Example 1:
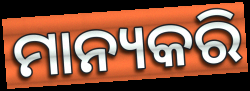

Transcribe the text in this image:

ମାନ୍ୟକରି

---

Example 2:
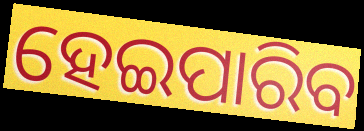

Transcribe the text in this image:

ହେଇପାରିବ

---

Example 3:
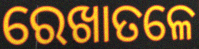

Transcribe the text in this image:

ରେଖାତଳେ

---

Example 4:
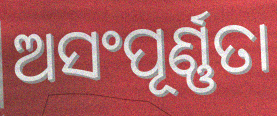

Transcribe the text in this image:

ଅସଂପୂର୍ଣ୍ଣତା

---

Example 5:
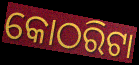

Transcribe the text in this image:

କୋଠରିଟା